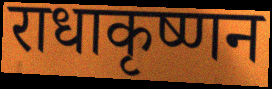
राधाकृष्णन